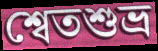
শ্বেতশুভ্র